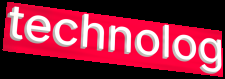
technolog